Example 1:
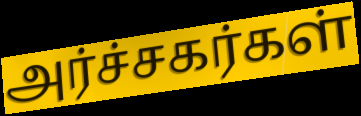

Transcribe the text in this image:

அர்ச்சகர்கள்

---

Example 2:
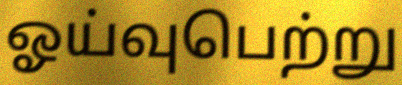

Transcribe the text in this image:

ஓய்வுபெற்று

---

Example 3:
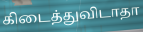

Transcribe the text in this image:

கிடைத்துவிடாதா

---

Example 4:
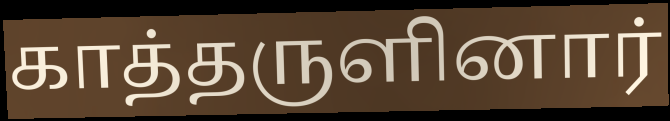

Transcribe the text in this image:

காத்தருளினார்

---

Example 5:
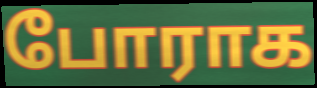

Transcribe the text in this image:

போராக